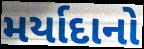
મર્યાદાનો